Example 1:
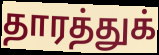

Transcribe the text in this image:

தாரத்துக்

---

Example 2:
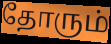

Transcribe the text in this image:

தோரும்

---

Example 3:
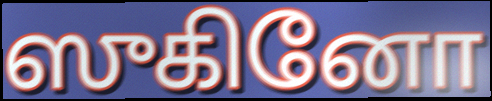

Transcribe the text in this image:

ஸுகினோ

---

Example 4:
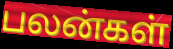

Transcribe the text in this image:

பலன்கள்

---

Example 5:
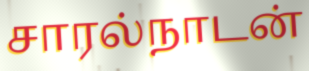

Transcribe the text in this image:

சாரல்நாடன்